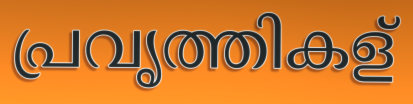
പ്രവൃത്തികള്